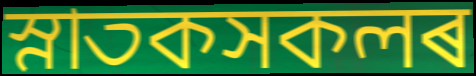
স্নাতকসকলৰ